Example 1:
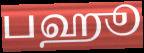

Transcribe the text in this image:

பஹூ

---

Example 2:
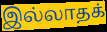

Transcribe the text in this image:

இல்லாதக்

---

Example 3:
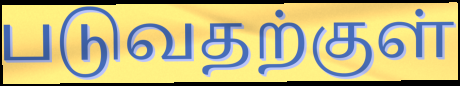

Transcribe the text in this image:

படுவதற்குள்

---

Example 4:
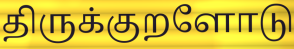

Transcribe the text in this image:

திருக்குறளோடு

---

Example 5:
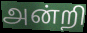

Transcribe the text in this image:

அன்றி